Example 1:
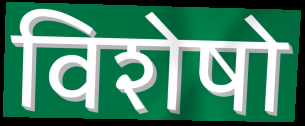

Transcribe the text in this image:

विशेषो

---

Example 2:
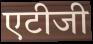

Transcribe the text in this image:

एटीजी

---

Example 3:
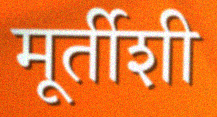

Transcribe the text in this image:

मूर्तीशी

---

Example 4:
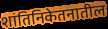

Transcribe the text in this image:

शांतिनिकेतनातील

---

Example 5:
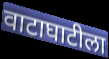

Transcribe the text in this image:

वाटाघाटीला